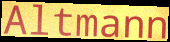
Altmann